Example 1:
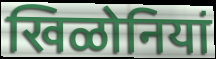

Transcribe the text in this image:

खिळोनियां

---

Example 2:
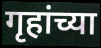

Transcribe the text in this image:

गृहांच्या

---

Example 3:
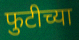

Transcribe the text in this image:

फुटीच्या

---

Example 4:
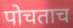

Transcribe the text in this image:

पोचताच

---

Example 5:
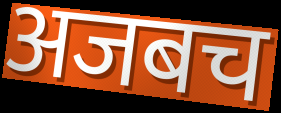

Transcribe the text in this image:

अजबच